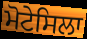
ਮੋਟੇਸਿਲਾ